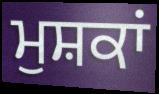
ਮੁਸ਼ਕਾਂ